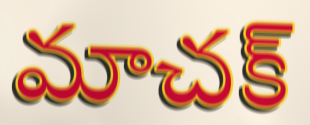
మాచక్